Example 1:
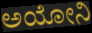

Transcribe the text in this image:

ಅಯೋನಿ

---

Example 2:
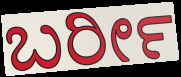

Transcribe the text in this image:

ಬರ್ರೀ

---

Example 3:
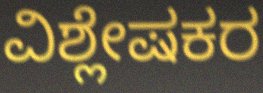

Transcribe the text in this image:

ವಿಶ್ಲೇಷಕರ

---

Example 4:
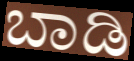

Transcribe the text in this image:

ಬಾಡಿ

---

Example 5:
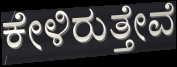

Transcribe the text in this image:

ಕೇಳಿರುತ್ತೇವೆ